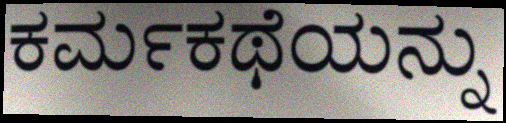
ಕರ್ಮಕಥೆಯನ್ನು